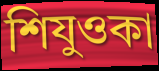
শিযুওকা